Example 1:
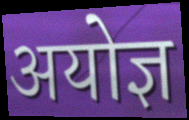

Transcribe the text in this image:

अयोज्ञ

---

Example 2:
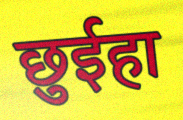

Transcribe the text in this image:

छुईहा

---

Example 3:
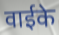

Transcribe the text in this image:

वाईके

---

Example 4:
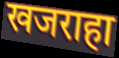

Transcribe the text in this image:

खजराहा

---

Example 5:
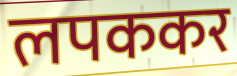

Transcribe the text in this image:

लपककर